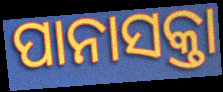
ପାନାସକ୍ତା